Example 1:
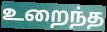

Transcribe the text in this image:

உறைந்த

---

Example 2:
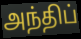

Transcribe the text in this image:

அந்திப்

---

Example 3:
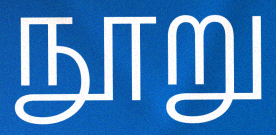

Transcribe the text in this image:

நூறு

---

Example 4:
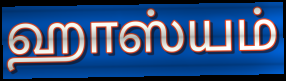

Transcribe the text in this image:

ஹாஸ்யம்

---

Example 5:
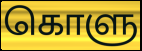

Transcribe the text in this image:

கொளு